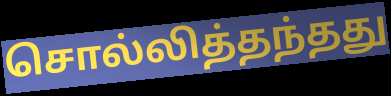
சொல்லித்தந்தது